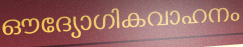
ഔദ്യോഗികവാഹനം